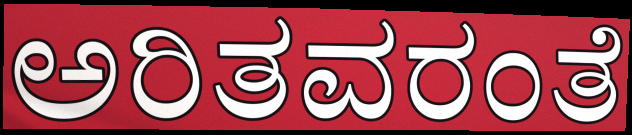
ಅರಿತವರಂತೆ